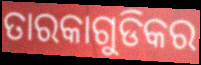
ତାରକାଗୁଡିକର